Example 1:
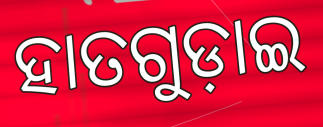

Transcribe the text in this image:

ହାତଗୁଡ଼ାଇ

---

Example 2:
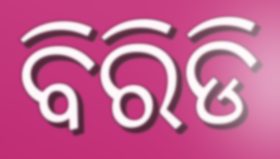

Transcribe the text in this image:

ବିରିଡି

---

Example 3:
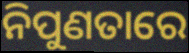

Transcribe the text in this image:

ନିପୁଣତାରେ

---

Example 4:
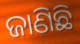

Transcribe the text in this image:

ଜାଣିଛି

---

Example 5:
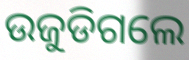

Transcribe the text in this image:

ଉଜୁଡିଗଲେ